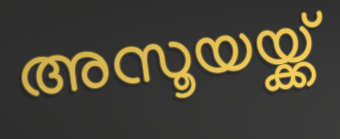
അസൂയയ്ക്ക്